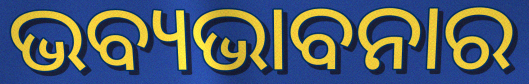
ଭବ୍ୟଭାବନାର